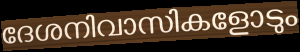
ദേശനിവാസികളോടും